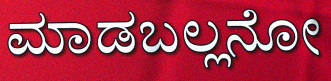
ಮಾಡಬಲ್ಲನೋ